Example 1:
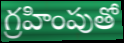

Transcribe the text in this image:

గ్రహింపుతో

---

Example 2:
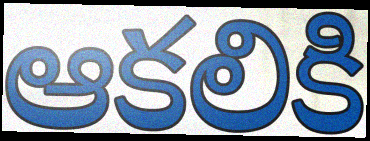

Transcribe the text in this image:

ఆకలికి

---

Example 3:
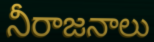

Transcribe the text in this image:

నీరాజనాలు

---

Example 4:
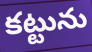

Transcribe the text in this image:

కట్టును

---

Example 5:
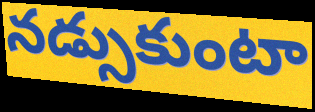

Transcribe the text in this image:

నడ్సుకుంటా